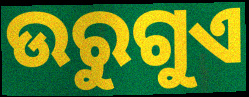
ଉରୁଗୁଏ